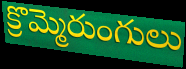
క్రొమ్మెరుంగులు